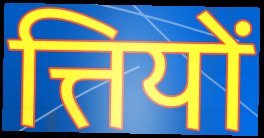
त्तियों